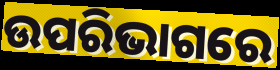
ଉପରିଭାଗରେ